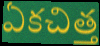
ఏకచిత్త